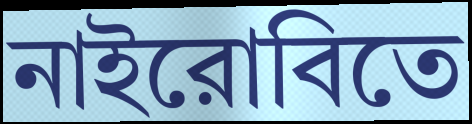
নাইরোবিতে